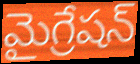
మైగ్రేషన్